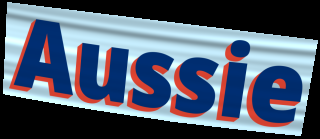
Aussie